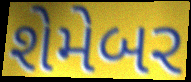
શેમેબર